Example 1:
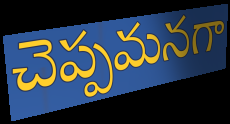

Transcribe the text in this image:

చెప్పమనగా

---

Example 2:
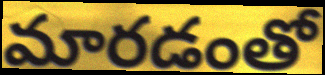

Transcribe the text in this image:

మారడంతో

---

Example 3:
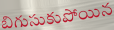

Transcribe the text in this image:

బిగుసుకుపోయిన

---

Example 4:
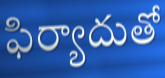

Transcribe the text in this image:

ఫిర్యాదుతో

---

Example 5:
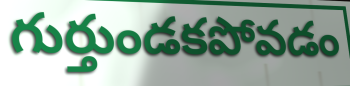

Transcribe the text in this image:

గుర్తుండకపోవడం